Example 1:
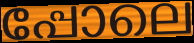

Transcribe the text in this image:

പ്പോലെ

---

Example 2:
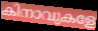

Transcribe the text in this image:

കിനാവുകളേ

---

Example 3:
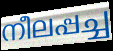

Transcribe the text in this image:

നീലപ്പച്ച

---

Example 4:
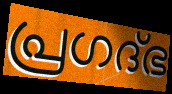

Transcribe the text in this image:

പ്രഗദ്ഭ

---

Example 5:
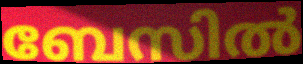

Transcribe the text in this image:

ബേസിൽ